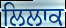
ਲਿਲਾਕ